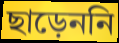
ছাড়েননি